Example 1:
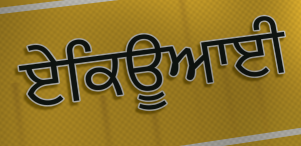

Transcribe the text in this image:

ਏਕਿਊਆਈ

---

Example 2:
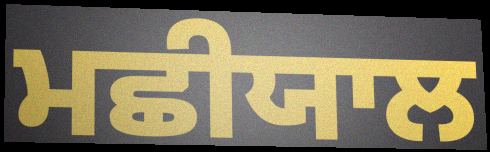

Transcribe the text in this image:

ਮਛੀਯਾਲ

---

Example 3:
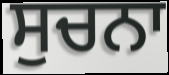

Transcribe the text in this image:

ਸੁਚਨਾ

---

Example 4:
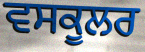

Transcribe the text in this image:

ਵਸਕੂਲਰ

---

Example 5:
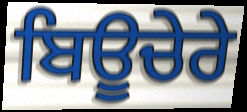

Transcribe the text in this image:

ਬਿਊਚੇਰੇ